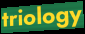
triology